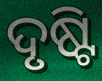
ଦୃଷ୍ଟି